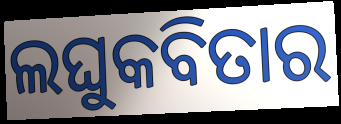
ଲଘୁକବିତାର